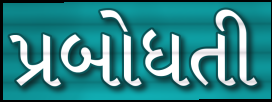
પ્રબોધતી